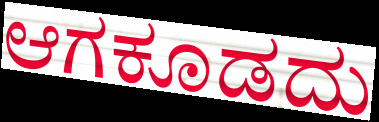
ಆಗಕೂಡದು